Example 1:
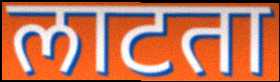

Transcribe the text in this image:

लाटता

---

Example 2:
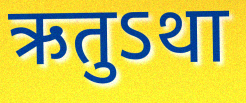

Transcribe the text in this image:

ऋतुऽथा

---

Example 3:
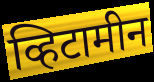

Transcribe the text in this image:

व्हिटामीन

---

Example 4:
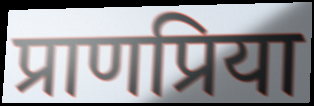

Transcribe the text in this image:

प्राणप्रिया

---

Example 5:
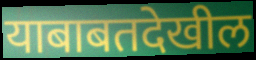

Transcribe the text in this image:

याबाबतदेखील